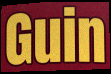
Guin